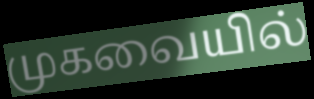
முகவையில்